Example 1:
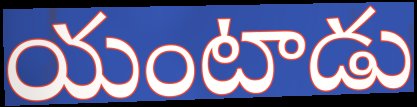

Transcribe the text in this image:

యంటాడు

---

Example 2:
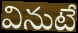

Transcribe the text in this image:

వినుటే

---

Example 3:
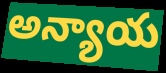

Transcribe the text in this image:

అన్యాయ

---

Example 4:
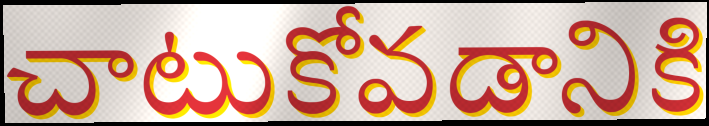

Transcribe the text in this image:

చాటుకోవడానికి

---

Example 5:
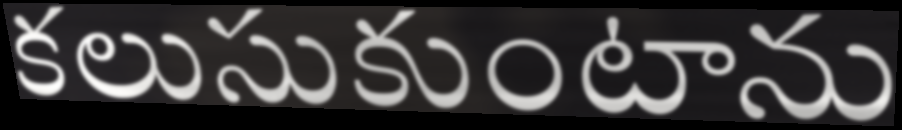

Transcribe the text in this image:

కలుసుకుంటాను